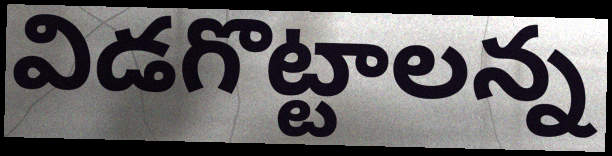
విడగొట్టాలన్న